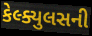
કેલ્ક્યુલસની